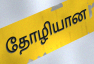
தோழியான